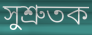
সুশ্ৰুতক